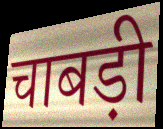
चाबड़ी